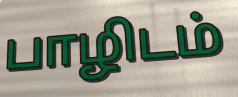
பாழிடம்